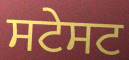
ਸਟੇਸਟ